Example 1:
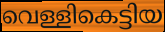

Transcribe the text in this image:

വെള്ളികെട്ടിയ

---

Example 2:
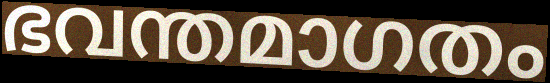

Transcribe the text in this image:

ഭവന്തമാഗതം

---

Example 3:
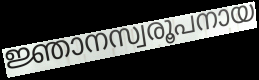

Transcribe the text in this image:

ജ്ഞാനസ്വരൂപനായ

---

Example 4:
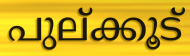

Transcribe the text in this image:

പുല്ക്കൂട്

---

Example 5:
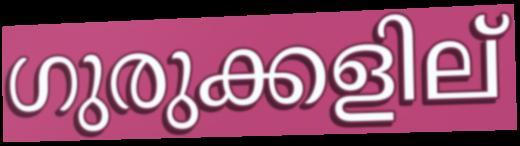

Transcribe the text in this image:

ഗുരുക്കളില്